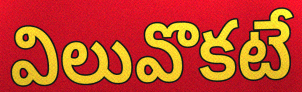
విలువొకటే